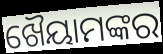
ଖୈୟାମଙ୍କର